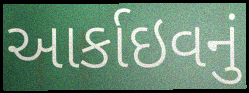
આર્કાઇવનું